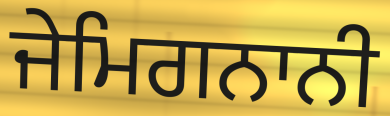
ਜੇਮਿਗਨਾਨੀ